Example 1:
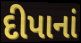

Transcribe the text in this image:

દીપાનાં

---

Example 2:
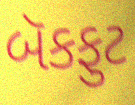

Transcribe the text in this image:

બૅકફુટ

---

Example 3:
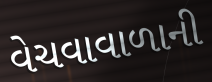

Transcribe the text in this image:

વેચવાવાળાની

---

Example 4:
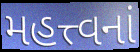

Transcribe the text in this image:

મહત્ત્વનાં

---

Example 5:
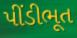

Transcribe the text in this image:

પીંડીભૂત